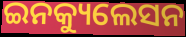
ଇନକ୍ୟୁଲେସନ